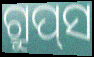
ଗ୍ରୁପ୍‌ସ